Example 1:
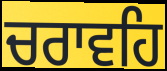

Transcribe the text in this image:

ਚਰਾਵਹਿ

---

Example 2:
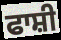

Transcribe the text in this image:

ਫਾਸ਼ੀ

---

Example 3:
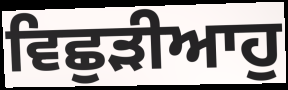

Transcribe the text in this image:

ਵਿਛੁੜੀਆਹੁ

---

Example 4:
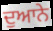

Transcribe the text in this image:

ਦੁਆਨੇ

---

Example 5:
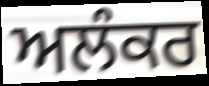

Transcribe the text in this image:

ਅਲੰਕਰ